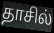
தாசில்